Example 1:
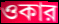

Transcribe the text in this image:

ওকার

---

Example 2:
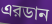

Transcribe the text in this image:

এরডান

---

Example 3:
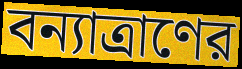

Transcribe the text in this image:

বন্যাত্রাণের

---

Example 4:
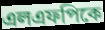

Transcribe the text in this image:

এলএফপিকে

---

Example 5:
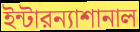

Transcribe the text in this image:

ইন্টারন্যাশানাল